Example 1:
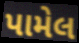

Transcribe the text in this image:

પામેલ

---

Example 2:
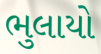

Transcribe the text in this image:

ભુલાયો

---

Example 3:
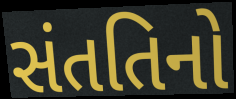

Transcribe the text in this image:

સંતતિનો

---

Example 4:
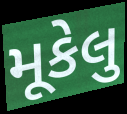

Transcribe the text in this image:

મૂકેલુ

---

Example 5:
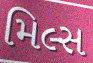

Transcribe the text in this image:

મિલ્સ